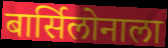
बार्सिलोनाला